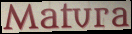
Matura